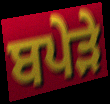
ਬਪੇੜੇ